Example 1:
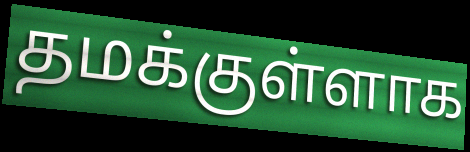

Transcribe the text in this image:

தமக்குள்ளாக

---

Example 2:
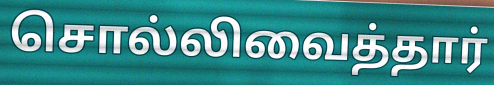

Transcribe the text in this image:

சொல்லிவைத்தார்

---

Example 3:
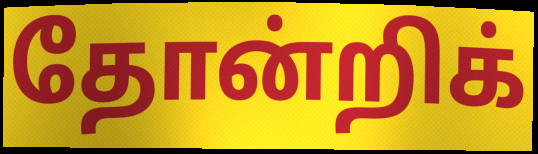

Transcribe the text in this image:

தோன்றிக்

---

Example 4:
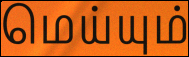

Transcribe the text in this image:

மெய்யும்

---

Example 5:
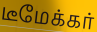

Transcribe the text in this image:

டீமேக்கர்